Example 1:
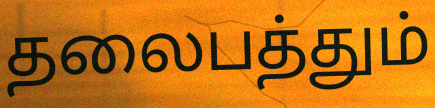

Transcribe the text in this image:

தலைபத்தும்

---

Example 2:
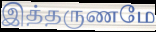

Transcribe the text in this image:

இத்தருணமே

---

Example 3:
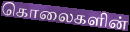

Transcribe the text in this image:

கொலைகளின்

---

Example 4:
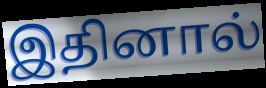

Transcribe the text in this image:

இதினால்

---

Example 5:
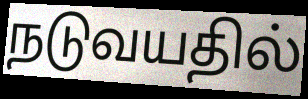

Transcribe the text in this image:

நடுவயதில்